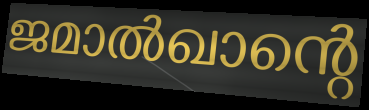
ജമാൽഖാന്റെ